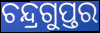
ଚନ୍ଦ୍ରଗୁପ୍ତର